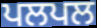
ਪਲਪਲ